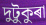
দুটুকুৰা